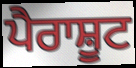
ਪੈਰਾਸ਼ੂਟ